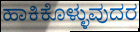
ಹಾಕಿಕೊಳ್ಳುವುದರ